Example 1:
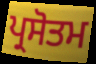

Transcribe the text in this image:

ਪ੍ਰਸੋਤਮ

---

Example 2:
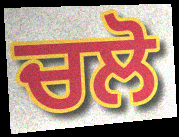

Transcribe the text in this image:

ਚਲੋ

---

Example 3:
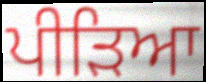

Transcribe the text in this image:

ਪੀੜਿਆ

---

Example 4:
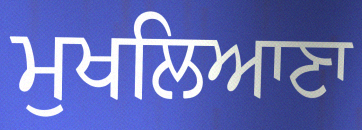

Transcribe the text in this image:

ਮੁਖਲਿਆਣਾ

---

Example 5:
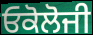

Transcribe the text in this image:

ਓਕੋਲੋਜੀ